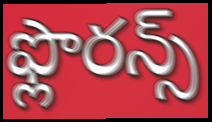
ఫ్లొరన్స్